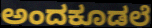
ಅಂದಕೂಡಲೆ